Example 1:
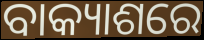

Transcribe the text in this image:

ବାକ୍ୟାଶରେ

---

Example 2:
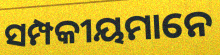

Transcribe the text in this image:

ସମ୍ପକୀୟମାନେ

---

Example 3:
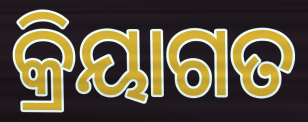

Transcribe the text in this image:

କ୍ରିୟାଗତ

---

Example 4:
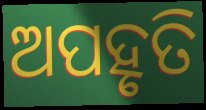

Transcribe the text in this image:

ଅପହୃତି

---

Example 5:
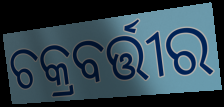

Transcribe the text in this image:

ଚକ୍ରବର୍ତ୍ତୀର